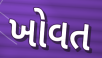
ખોવત